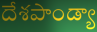
దేశపాండ్యా